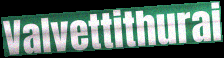
Valvettithurai